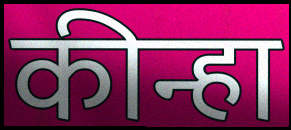
कीन्हा